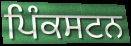
ਪਿੰਕਸਟਨ